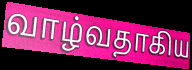
வாழ்வதாகிய